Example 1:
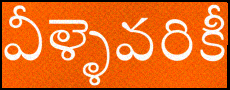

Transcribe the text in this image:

వీళ్ళెవరికీ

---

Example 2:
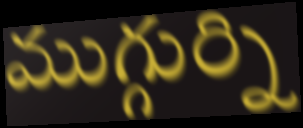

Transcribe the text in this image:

ముగ్గుర్ని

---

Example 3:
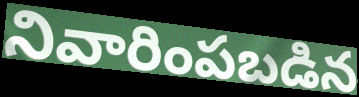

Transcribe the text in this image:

నివారింపబడిన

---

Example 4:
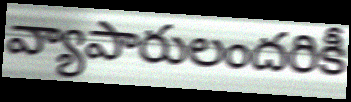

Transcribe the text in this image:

వ్యాపారులందరికీ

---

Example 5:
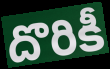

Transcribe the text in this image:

దొరికీ